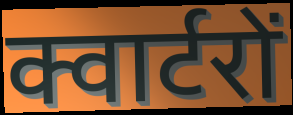
क्वार्टरों